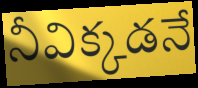
నీవిక్కడనే